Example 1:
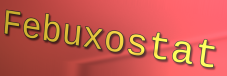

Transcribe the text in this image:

Febuxostat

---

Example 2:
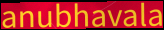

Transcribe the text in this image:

anubhavala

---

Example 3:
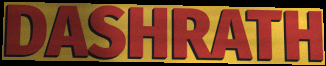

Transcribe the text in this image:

DASHRATH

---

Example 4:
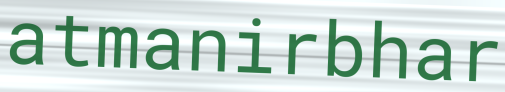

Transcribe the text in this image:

atmanirbhar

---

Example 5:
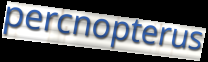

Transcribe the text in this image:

percnopterus